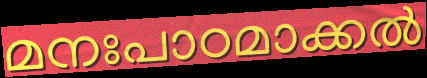
മനഃപാഠമാക്കൽ